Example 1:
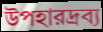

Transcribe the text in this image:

উপহারদ্রব্য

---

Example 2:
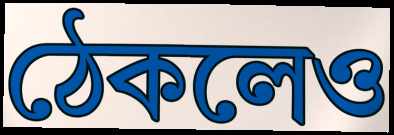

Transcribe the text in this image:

ঠেকলেও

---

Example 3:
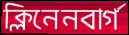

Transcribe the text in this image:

ক্লিনেনবার্গ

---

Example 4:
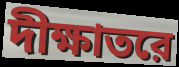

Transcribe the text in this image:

দীক্ষাতরে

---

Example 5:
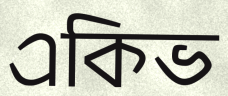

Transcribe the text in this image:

একিভ